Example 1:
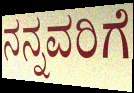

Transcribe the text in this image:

ನನ್ನವರಿಗೆ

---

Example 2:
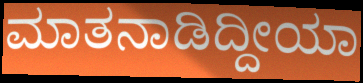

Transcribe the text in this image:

ಮಾತನಾಡಿದ್ದೀಯಾ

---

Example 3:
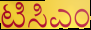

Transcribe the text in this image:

ಟಿಸಿಎಂ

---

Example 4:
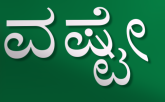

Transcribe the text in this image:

ವಷ್ಟೇ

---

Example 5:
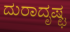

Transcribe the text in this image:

ದುರಾದೃಷ್ಟ